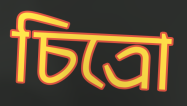
চিত্রো